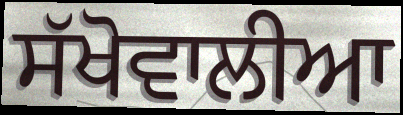
ਸੱਖੋਵਾਲੀਆ